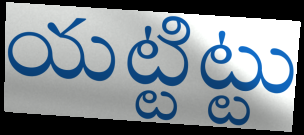
యట్టిట్టు